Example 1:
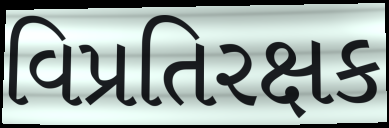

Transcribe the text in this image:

વિપ્રતિરક્ષક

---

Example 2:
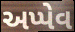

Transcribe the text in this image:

અપ્પેવ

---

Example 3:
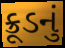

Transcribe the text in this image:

ક્રૂડનું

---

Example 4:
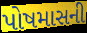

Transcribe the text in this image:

પોષમાસની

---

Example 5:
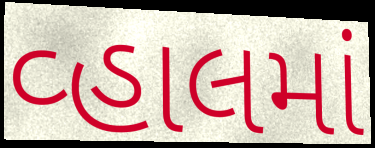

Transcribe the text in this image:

વ્હાલમાં